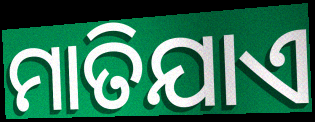
ମାତିଯାଏ